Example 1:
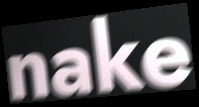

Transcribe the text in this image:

nake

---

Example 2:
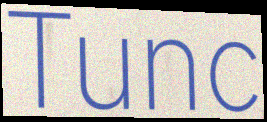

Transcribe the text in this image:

Tunc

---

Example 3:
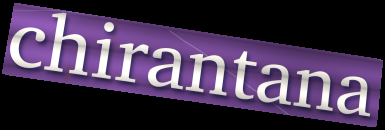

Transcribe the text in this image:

chirantana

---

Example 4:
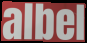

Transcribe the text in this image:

albel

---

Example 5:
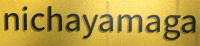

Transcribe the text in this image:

nichayamaga